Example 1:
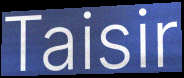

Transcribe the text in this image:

Taisir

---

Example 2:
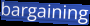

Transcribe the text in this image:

bargaining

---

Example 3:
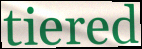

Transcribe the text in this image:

tiered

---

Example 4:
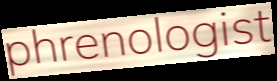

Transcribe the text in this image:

phrenologist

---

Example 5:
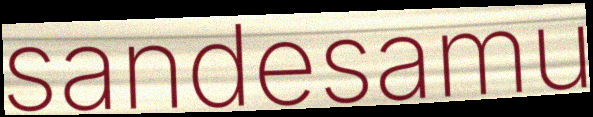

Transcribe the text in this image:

sandesamu